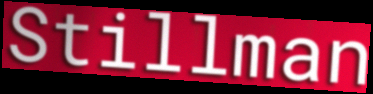
Stillman